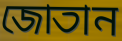
জোতান